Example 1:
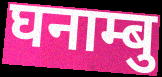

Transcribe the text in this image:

घनाम्बु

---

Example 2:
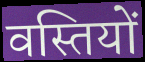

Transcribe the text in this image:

वस्तियों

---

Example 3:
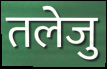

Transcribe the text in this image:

तलेजु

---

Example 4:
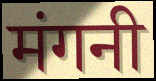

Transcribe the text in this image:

मंगनी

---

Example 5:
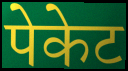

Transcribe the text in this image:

पेकेट